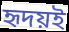
হৃদয়ই